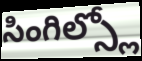
సింగిల్స్లో